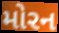
મોરન